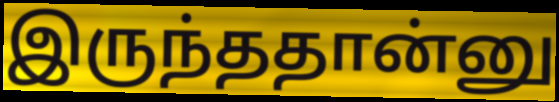
இருந்ததான்னு